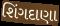
શિંગદાણા